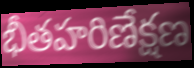
భీతహరిణేక్షణ